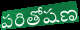
పరితోషణ